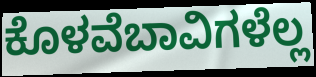
ಕೊಳವೆಬಾವಿಗಳೆಲ್ಲ